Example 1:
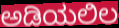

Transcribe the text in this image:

ಅಡಿಯಲಿಲ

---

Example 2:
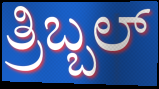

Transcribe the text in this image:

ತ್ರಿಬ್ಬಲ್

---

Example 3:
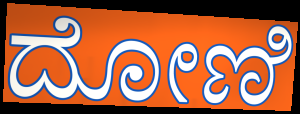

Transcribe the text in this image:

ದೋಣಿ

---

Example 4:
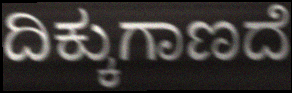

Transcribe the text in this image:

ದಿಕ್ಕುಗಾಣದೆ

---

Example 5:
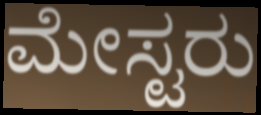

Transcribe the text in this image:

ಮೇಸ್ಟರು